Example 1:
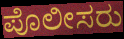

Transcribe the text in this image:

ಪೊಲೀಸರು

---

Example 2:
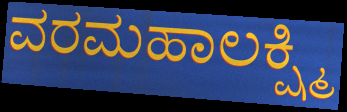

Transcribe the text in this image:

ವರಮಹಾಲಕ್ಷ್ಮಿ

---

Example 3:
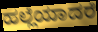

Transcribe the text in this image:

ಹಲ್ಲೆಯಾದರೆ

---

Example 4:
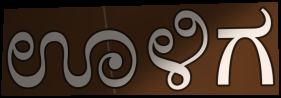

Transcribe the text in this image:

ಊಳಿಗ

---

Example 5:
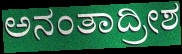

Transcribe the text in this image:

ಅನಂತಾದ್ರೀಶ